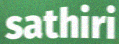
sathiri